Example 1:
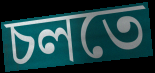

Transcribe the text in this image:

চলতে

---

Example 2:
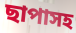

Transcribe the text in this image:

ছাপাসহ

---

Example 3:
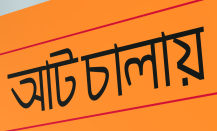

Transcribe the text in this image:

আটচালায়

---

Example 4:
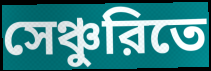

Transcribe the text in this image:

সেঞ্চুরিতে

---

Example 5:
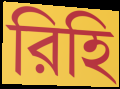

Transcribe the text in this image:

রিহি